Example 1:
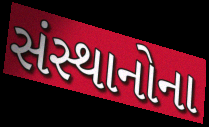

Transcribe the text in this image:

સંસ્થાનોના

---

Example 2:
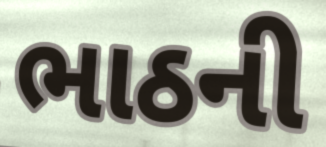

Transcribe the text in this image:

ભાઠની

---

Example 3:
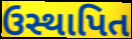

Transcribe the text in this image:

ઉસ્થાપિત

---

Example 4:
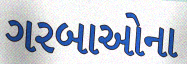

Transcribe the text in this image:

ગરબાઓના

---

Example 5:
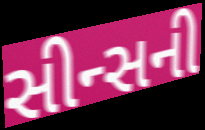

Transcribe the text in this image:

સીન્સની